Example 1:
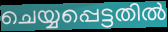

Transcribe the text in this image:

ചെയ്യപ്പെട്ടതിൽ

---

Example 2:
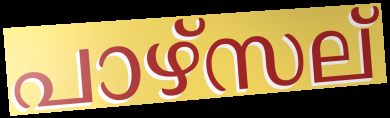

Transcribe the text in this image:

പാഴ്സല്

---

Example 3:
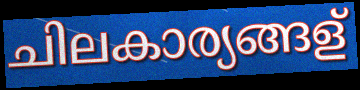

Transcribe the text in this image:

ചിലകാര്യങ്ങള്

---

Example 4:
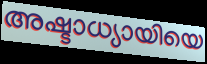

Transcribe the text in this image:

അഷ്ടാധ്യായിയെ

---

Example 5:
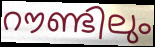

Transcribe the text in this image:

റൗണ്ടിലും